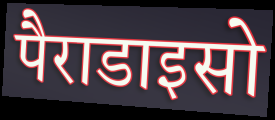
पैराडाइसो